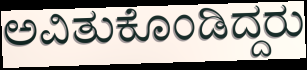
ಅವಿತುಕೊಂಡಿದ್ದರು